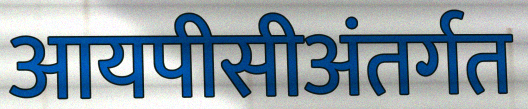
आयपीसीअंतर्गत